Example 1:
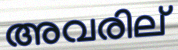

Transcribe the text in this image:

അവരില്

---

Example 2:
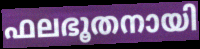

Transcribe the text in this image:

ഫലഭൂതനായി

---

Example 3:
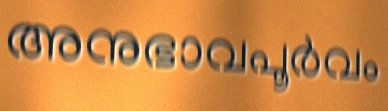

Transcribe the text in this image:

അനുഭാവപൂർവം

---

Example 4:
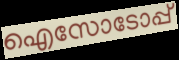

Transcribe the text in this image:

ഐസോടോപ്പ്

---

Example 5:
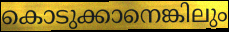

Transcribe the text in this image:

കൊടുക്കാനെങ്കിലും